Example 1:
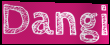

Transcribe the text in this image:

Dangi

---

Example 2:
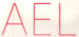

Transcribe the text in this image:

AEL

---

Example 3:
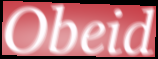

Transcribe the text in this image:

Obeid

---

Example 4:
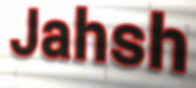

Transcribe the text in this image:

Jahsh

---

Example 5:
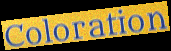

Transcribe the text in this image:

Coloration